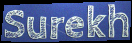
Surekh